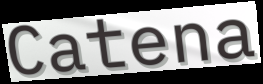
Catena